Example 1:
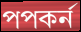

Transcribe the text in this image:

পপকর্ন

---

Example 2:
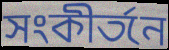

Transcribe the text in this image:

সংকীর্তনে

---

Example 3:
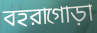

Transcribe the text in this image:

বহরাগোড়া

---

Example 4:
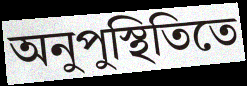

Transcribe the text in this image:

অনুপুস্থিতিতে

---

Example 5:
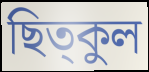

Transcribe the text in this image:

ছিত্কুল